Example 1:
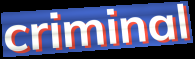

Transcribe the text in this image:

criminal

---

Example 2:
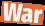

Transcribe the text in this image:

War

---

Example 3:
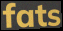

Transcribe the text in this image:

fats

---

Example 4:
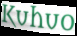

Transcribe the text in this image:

Kuhuo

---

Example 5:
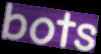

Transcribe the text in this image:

bots